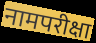
नामपरीक्षा